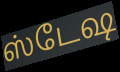
ஸ்டேஷ